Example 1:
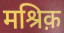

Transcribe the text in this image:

मश्रिक़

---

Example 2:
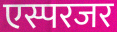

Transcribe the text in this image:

एस्परजर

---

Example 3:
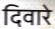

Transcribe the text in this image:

दिवारे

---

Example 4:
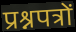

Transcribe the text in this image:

प्रश्नपत्रों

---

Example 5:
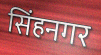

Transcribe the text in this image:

सिंहनगर